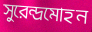
সুরেন্দ্রমোহন